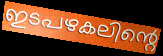
ഇടപഴകലിന്റെ